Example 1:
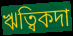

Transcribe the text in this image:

ঋত্বিকদা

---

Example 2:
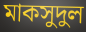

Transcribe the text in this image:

মাকসুদুল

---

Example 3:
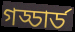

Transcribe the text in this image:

গড্ডার্ড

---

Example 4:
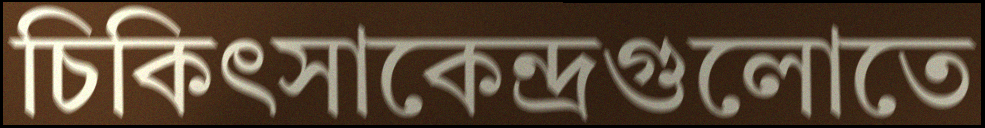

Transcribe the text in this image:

চিকিৎসাকেন্দ্রগুলোতে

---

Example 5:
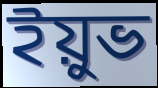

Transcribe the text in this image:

ইয়ুভ